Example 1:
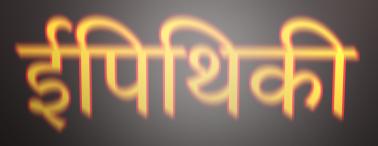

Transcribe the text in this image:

ईपिथिकी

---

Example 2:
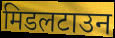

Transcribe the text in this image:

मिडलटाउन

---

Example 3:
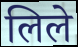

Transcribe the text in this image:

लिले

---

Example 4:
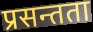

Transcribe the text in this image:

प्रसन्तता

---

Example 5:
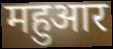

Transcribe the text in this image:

महुआर